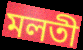
মলতী